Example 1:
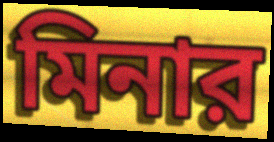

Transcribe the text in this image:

মিনার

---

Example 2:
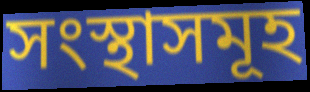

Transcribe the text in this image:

সংস্থাসমূহ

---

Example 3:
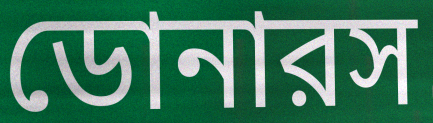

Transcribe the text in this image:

ডোনারস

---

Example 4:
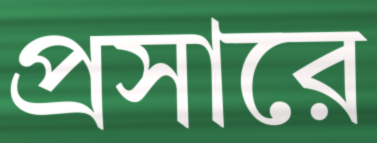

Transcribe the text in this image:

প্রসারে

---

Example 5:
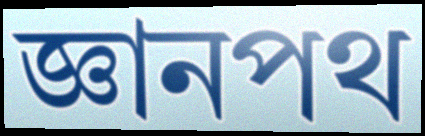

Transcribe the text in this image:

জ্ঞানপথ